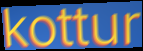
kottur